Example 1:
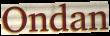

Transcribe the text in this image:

Ondan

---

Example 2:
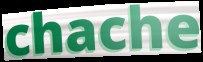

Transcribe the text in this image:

chache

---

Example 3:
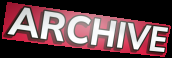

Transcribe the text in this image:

ARCHIVE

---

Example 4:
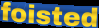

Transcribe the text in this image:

foisted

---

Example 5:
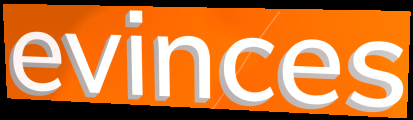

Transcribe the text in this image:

evinces